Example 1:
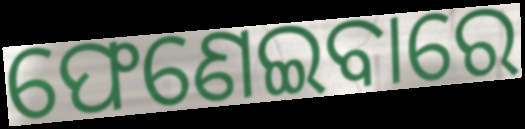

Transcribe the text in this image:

ଫେଣେଇବାରେ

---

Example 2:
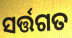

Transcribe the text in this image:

ସର୍ତ୍ତଗତ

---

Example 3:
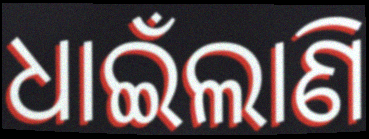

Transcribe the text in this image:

ଧାଇଁଲାଣି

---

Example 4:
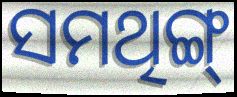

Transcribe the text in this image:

ସମଥିଙ୍ଗ୍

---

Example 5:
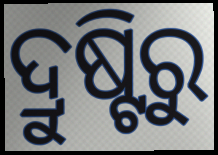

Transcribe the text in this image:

ଦ୍ରୁଷ୍ଟିରୁ